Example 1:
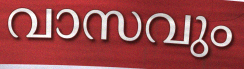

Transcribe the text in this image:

വാസവും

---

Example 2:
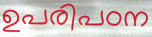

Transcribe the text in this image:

ഉപരിപഠന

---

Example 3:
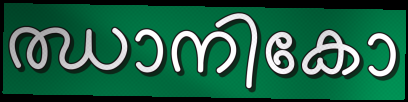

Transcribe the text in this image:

ഝാനികോ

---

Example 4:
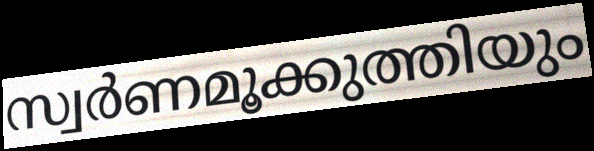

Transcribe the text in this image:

സ്വർണമൂക്കുത്തിയും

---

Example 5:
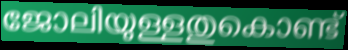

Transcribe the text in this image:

ജോലിയുള്ളതുകൊണ്ട്